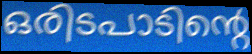
ഒരിടപാടിന്റെ